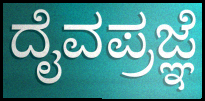
ದೈವಪ್ರಜ್ಞೆ